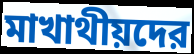
মাখাথীয়দের